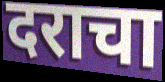
दराचा